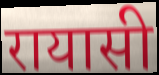
रायासी